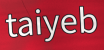
taiyeb